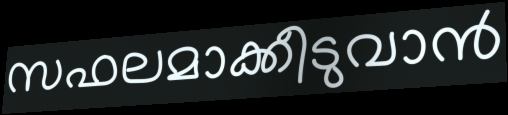
സഫലമാക്കീടുവാൻ